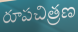
రూపచిత్రణ